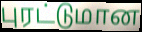
புரட்டுமான